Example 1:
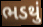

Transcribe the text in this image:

ભડથું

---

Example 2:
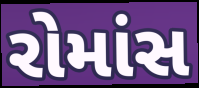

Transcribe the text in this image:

રોમાંસ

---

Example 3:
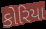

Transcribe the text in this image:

કોરિયા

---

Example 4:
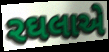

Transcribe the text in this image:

રઘલાએ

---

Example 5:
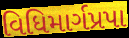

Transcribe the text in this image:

વિધિમાર્ગપ્રપા